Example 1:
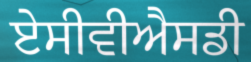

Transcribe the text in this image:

ਏਸੀਵੀਐਸਡੀ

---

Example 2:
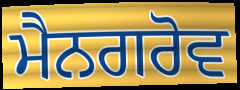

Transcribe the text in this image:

ਮੈਨਗਰੋਵ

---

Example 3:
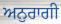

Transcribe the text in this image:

ਅਨੁਰਾਗੀ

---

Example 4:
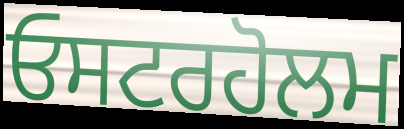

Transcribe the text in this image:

ਓਸਟਰਹੋਲਮ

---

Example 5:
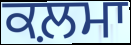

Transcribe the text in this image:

ਕਲ਼ਮਾ